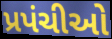
પ્રપંચીઓ